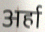
अर्हा